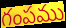
గంపము